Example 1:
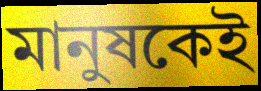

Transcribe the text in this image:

মানুষকেই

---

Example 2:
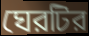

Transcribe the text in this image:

ঘেরটির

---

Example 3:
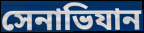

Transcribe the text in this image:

সেনাভিযান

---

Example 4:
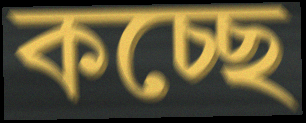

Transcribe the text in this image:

কচ্ছে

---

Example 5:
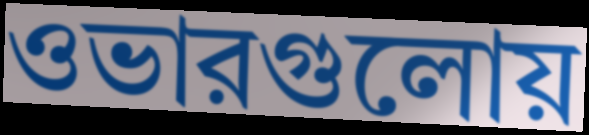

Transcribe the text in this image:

ওভারগুলোয়